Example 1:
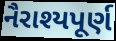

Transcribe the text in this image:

નૈરાશ્યપૂર્ણ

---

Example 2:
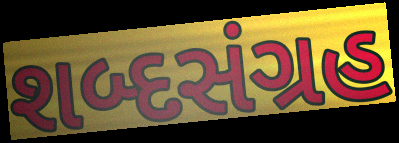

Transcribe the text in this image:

શબ્દસંગ્રહ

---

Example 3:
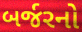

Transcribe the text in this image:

બર્જરનો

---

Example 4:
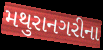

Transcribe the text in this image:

મથુરાનગરીના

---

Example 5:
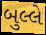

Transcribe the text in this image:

બુલ્લે